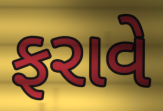
ફરાવે